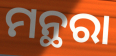
ମନ୍ଥରା